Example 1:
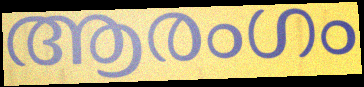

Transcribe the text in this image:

ആരംഗം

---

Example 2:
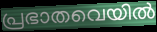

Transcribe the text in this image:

പ്രഭാതവെയിൽ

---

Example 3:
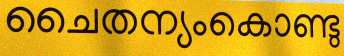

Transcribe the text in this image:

ചൈതന്യംകൊണ്ടു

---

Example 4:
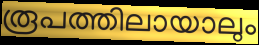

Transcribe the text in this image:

രൂപത്തിലായാലും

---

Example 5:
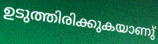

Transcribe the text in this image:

ഉടുത്തിരിക്കുകയാണു്